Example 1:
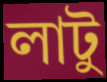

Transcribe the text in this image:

লাটু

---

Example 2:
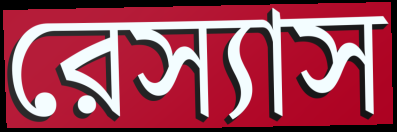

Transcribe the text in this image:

রেস্যাস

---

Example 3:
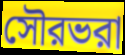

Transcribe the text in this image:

সৌরভরা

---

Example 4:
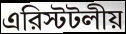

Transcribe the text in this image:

এরিস্টটলীয়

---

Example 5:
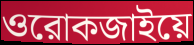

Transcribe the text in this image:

ওরোকজাইয়ে